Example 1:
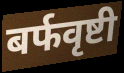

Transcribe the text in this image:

बर्फवृष्टी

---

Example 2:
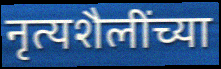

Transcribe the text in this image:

नृत्यशैलींच्या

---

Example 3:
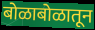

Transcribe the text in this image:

बोळाबोळातून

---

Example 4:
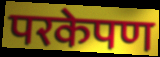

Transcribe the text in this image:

परकेपण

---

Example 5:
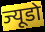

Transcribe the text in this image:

ज्यूडो